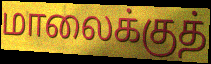
மாலைக்குத்